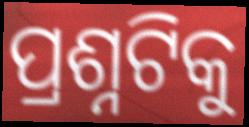
ପ୍ରଶ୍ନଟିକୁ